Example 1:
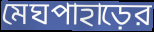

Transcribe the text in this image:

মেঘপাহাড়ের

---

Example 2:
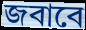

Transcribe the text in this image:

জবাবে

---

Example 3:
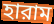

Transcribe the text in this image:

হারাম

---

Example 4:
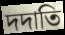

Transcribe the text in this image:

দদাতি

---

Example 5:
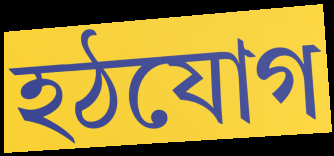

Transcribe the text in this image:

হঠযোগ